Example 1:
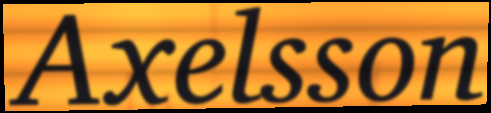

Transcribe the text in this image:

Axelsson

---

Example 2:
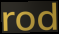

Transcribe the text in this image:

rod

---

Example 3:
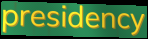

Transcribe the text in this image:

presidency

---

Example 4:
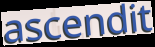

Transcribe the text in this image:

ascendit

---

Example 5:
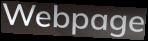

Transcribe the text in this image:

Webpage